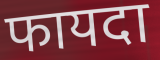
फायदा